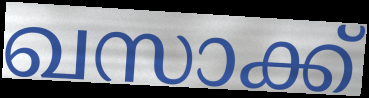
ഖസാക്ക്